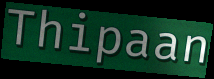
Thipaan